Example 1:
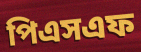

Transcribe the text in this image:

পিএসএফ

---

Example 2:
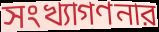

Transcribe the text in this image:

সংখ্যাগণনার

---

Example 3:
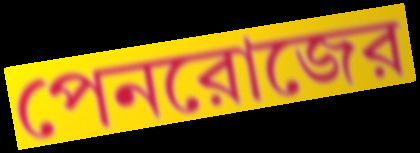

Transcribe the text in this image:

পেনরোজের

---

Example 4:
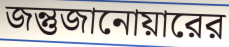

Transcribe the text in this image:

জন্তুজানোয়ারের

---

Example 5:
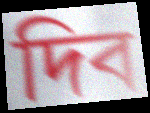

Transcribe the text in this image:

দিব